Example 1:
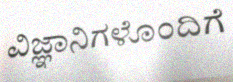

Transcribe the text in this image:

ವಿಜ್ಞಾನಿಗಳೊಂದಿಗೆ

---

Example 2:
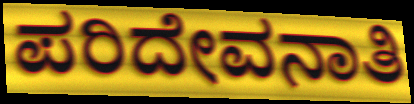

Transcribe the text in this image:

ಪರಿದೇವನಾತಿ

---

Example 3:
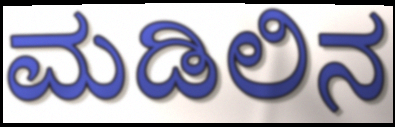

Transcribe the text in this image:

ಮಡಿಲಿನ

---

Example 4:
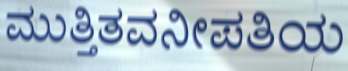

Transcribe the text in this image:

ಮುತ್ತಿತವನೀಪತಿಯ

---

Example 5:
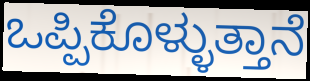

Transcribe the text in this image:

ಒಪ್ಪಿಕೊಳ್ಳುತ್ತಾನೆ